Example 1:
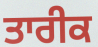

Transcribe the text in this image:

ਤਾਰੀਕ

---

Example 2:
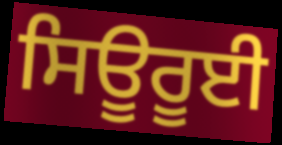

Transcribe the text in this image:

ਸਿਊਰੂਈ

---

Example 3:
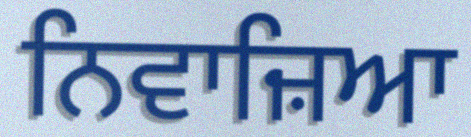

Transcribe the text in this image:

ਨਿਵਾਜ਼ਿਆ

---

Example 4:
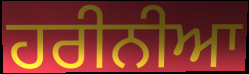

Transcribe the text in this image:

ਹਰੀਨੀਆ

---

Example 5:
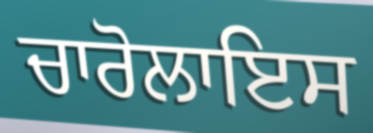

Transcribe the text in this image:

ਚਾਰੋਲਾਇਸ